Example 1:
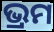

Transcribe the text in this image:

ଭ୍ରମ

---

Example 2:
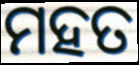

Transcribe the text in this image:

ମହତ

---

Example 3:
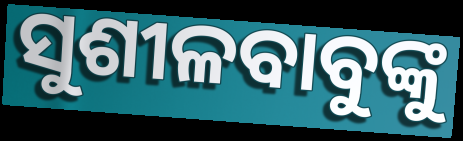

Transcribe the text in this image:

ସୁଶୀଳବାବୁଙ୍କୁ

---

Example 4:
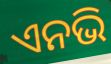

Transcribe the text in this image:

ଏନଭି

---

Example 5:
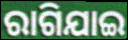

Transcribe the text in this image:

ରାଗିଯାଇ